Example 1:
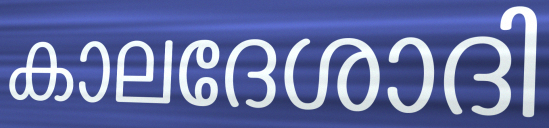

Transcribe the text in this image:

കാലദേശാദി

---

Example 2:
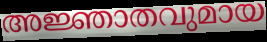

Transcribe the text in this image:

അജ്ഞാതവുമായ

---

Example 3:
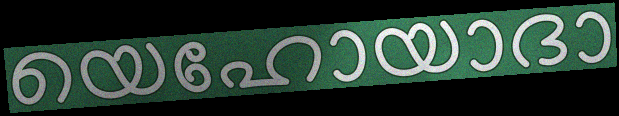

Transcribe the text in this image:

യെഹോയാദാ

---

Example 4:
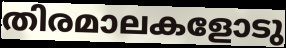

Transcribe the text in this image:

തിരമാലകളോടു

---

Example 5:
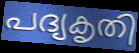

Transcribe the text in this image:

പദ്യകൃതി